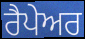
ਰੈਪੇਅਰ